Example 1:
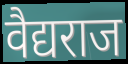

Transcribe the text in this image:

वैद्यराज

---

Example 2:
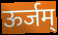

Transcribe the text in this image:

ऊर्जम्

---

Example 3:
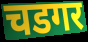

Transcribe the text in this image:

चडगर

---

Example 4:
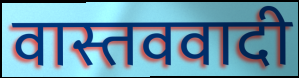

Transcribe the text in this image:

वास्तववादी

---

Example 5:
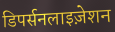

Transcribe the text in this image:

डिपर्सनलाइज़ेशन